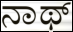
ನಾಥ್